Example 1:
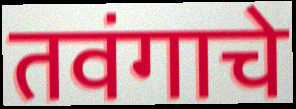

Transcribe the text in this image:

तवंगाचे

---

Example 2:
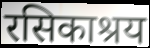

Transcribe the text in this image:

रसिकाश्रय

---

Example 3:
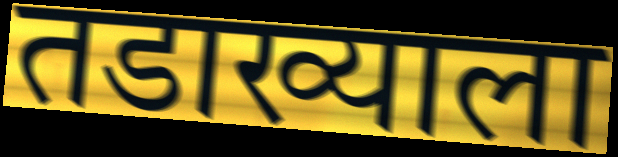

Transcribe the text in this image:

तडाख्याला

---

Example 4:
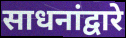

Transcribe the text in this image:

साधनांद्वारे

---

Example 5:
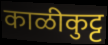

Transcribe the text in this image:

काळीकुट्ट